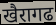
खैरागढ